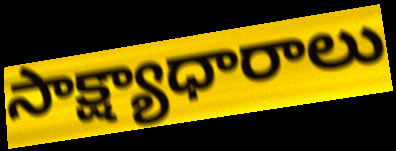
సాక్ష్యాధారాలు